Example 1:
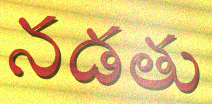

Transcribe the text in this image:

నడతు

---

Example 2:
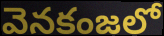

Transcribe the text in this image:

వెనకంజలో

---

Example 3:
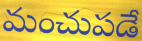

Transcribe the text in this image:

మంచుపడే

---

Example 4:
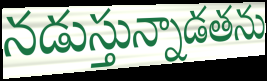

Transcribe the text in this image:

నడుస్తున్నాడతను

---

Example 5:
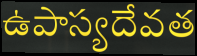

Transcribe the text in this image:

ఉపాస్యదేవత